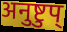
अनुष्टुप्